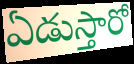
ఏడుస్తారో